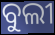
ବୁଲୀ